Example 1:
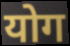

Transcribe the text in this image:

योग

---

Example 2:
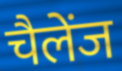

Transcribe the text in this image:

चैलेंज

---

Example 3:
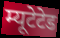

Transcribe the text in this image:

म्यूटेटेड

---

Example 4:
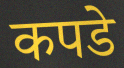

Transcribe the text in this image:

कपडे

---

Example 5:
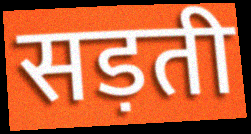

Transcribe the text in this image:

सड़ती